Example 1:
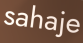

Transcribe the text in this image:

sahaje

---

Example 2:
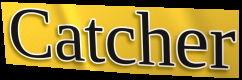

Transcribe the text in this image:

Catcher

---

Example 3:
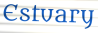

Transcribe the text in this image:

Estuary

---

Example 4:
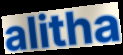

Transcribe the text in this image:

alitha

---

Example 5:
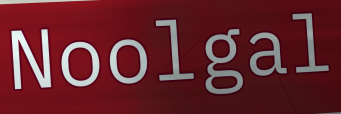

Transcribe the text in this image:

Noolgal